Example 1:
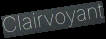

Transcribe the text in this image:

Clairvoyant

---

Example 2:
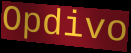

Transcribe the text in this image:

Opdivo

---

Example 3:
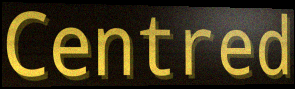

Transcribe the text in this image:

Centred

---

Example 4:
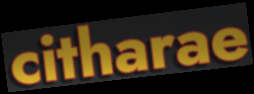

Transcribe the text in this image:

citharae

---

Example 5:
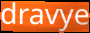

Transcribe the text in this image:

dravye